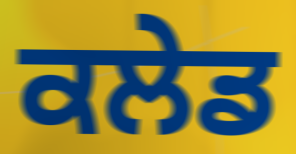
ਕਲੇਡ